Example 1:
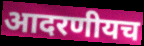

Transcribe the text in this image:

आदरणीयच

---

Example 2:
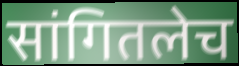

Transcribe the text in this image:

सांगितलेच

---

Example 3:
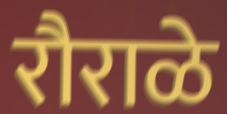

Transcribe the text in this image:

रौराळे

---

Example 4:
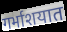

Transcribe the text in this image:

गर्भाशयात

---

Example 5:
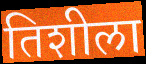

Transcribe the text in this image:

तिशीला